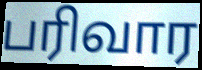
பரிவார